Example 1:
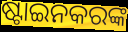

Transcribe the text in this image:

ଷ୍ଟାଇନକରଙ୍କ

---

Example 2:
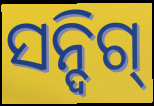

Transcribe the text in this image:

ସନ୍ଦିଗ୍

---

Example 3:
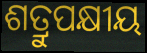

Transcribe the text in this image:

ଶତ୍ରୁପକ୍ଷୀୟ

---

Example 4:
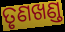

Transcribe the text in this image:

ତୃଣଖଣ୍ଡ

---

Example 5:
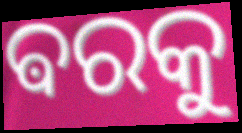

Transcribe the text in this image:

ଵରକୁ